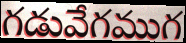
గడువేగముగ